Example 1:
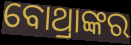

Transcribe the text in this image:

ବୋଥ୍ରାଙ୍କର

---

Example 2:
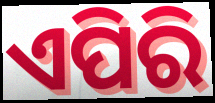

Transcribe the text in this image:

ଏପିରି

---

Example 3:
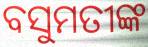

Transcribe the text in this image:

ବସୁମତୀଙ୍କ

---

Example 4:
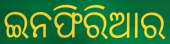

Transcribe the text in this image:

ଇନଫିରିଆର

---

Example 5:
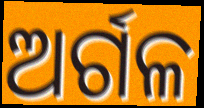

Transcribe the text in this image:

ଅର୍ଗଳ